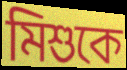
মিশুকে